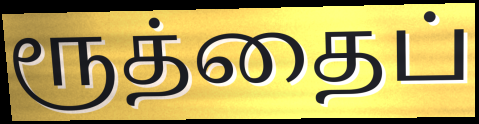
ரூத்தைப்